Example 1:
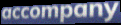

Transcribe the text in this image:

accompany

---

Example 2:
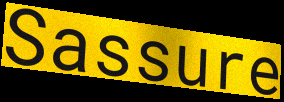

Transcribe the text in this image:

Sassure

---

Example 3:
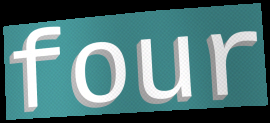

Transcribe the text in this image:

four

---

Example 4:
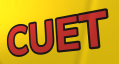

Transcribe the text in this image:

CUET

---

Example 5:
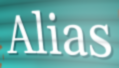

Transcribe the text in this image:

Alias